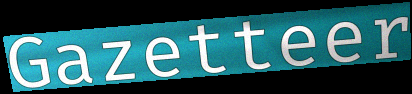
Gazetteer